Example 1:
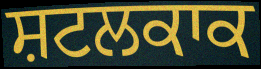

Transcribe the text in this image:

ਸ਼ਟਲਕਾਕ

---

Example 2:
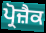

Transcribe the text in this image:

ਪ੍ਰੋਜ਼ੈਕ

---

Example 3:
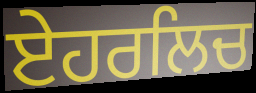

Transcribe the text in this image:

ਏਹਰਲਿਚ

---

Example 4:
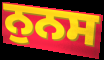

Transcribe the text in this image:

ਨੁਨਸ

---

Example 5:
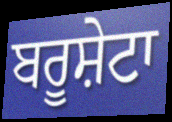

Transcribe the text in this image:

ਬਰੂਸ਼ੇਟਾ